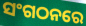
ସଂଗଠନରେ